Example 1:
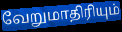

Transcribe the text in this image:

வேறுமாதிரியும்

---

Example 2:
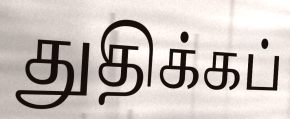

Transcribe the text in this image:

துதிக்கப்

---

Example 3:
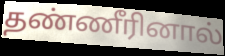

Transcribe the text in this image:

தண்ணீரினால்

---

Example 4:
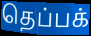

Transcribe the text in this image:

தெப்பக்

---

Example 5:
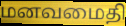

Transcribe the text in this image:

மனவமைதி